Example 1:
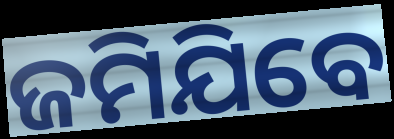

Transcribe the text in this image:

ଜମିଯିବେ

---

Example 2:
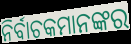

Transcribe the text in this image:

ନିର୍ବାଚକମାନଙ୍କର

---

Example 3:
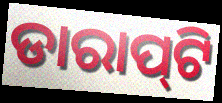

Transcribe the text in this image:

ଡାରାପ୍‌ଟି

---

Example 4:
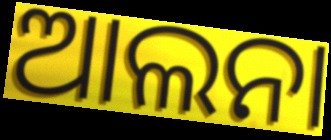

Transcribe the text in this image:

ଆଲନା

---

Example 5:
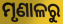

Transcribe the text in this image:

ମୃଣାଳରୁ